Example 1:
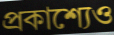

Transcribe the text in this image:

প্রকাশ্যেও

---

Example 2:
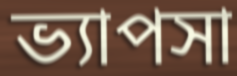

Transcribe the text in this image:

ভ্যাপসা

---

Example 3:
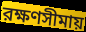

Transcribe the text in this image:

রক্ষণসীমায়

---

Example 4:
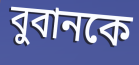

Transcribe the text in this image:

বুবানকে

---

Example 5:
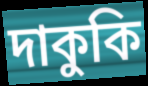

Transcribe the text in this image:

দাকুকি